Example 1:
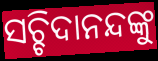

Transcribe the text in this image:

ସଚ୍ଚିଦାନନ୍ଦଙ୍କୁ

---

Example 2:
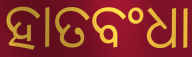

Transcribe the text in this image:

ହାତବଂଧା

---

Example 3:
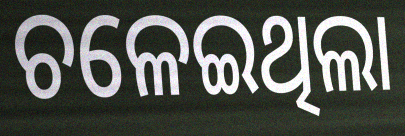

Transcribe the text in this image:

ଚଳେଇଥିଲା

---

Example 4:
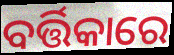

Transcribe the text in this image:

ବର୍ତ୍ତିକାରେ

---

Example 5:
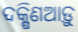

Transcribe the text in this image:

ଦକ୍ଷିଣଆଡ଼ୁ